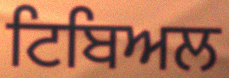
ਟਿਬਿਅਲ